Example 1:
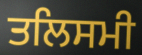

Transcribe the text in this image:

ਤਲਿਸਮੀ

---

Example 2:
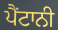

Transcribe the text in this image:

ਪੈਂਟਾਨੀ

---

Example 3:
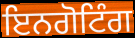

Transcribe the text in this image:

ਇਨਗੋਟਿੰਗ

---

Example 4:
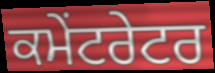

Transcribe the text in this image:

ਕਮੇਂਟਰੇਟਰ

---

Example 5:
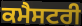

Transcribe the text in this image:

ਕਮੈਸਟਰੀ